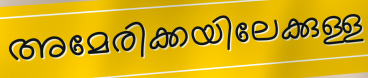
അമേരിക്കയിലേക്കുള്ള